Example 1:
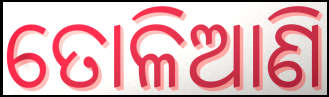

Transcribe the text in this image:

ତୋଳିଆଣି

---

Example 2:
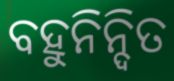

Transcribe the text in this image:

ବହୁନିନ୍ଦିତ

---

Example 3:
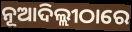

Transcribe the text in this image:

ନୂଆଦିଲ୍ଲୀଠାରେ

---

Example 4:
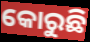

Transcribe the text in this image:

କୋରୁଛି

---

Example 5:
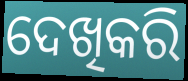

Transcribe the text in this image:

ଦେଖିକରି